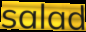
salad